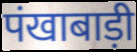
पंखाबाड़ी